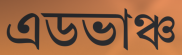
এডভাঞ্চ